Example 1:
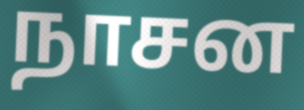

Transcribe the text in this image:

நாசன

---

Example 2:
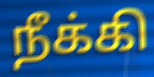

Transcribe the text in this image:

நீக்கி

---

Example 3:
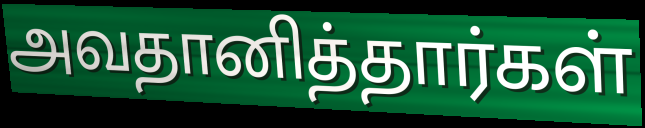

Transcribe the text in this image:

அவதானித்தார்கள்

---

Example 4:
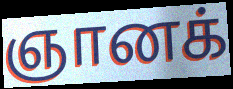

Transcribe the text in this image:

ஞானக்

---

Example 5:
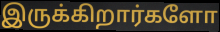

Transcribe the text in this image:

இருக்கிறார்களோ